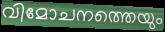
വിമോചനത്തെയും